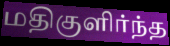
மதிகுளிர்ந்த